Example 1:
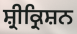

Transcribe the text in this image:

ਸ਼੍ਰੀਕ੍ਰਿਸ਼ਨ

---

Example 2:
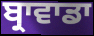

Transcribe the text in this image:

ਬ੍ਰਾਵਾਡਾ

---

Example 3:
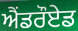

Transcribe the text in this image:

ਐਂਡਰੌਏਡ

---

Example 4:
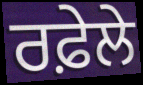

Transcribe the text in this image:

ਰਫ਼ੇਲੇ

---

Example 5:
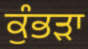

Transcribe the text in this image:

ਕੁੰਭੜਾ